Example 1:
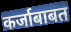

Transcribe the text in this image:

कर्जाबाबत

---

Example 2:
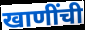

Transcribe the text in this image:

खाणींची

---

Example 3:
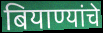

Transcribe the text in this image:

बियाण्यांचे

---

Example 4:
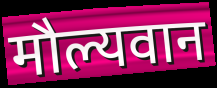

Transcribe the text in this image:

मौल्यवान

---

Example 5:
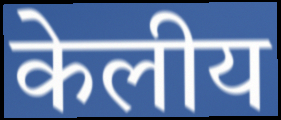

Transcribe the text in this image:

केलीय